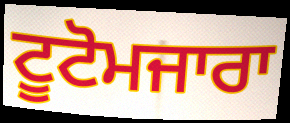
ਟੂਟੋਮਜਾਰਾ